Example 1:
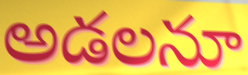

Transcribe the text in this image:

అడలనూ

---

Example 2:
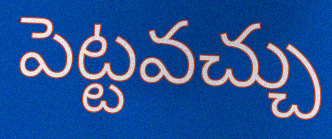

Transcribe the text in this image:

పెట్టవచ్చు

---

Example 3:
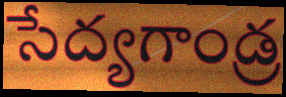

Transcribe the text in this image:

సేద్యగాండ్ర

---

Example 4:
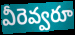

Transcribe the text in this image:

వీరెవ్వరూ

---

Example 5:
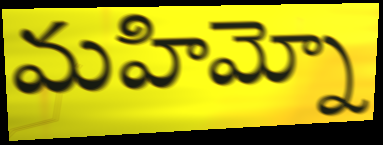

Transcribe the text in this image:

మహిమ్నో